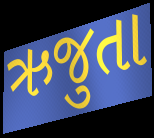
ઋજુતા